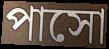
পাসো